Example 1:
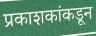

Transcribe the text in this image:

प्रकाशकांकडून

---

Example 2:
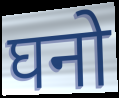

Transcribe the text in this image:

घनो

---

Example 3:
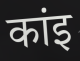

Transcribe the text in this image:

कांइ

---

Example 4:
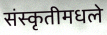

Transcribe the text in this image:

संस्कृतीमधले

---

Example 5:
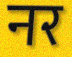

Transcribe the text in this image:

नर